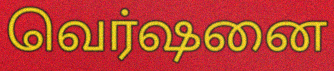
வெர்ஷனை